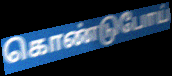
கொண்டுபோய்